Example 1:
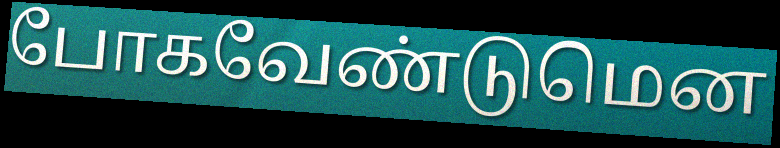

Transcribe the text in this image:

போகவேண்டுமென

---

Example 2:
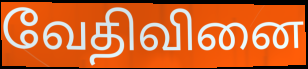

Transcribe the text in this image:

வேதிவினை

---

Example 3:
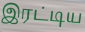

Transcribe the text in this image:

இரட்டிய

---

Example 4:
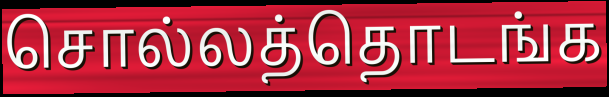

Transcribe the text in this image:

சொல்லத்தொடங்க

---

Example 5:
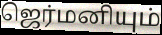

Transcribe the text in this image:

ஜெர்மனியும்